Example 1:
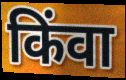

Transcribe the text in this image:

किंवा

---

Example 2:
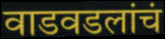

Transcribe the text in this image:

वाडवडलांचं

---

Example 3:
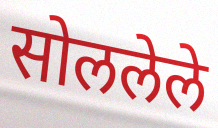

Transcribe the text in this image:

सोललेले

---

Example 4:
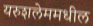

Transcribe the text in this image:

यरुशलेममधील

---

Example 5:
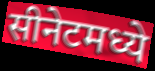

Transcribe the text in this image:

सीनेटमध्ये